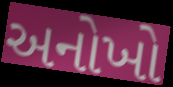
અનોખો